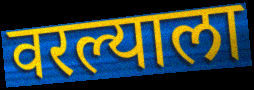
वरल्याला